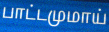
பாட்டமுமாய்